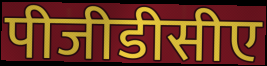
पीजीडीसीए